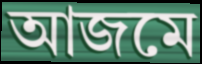
আজমে